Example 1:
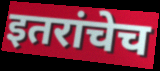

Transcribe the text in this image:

इतरांचेच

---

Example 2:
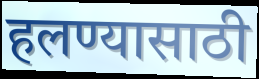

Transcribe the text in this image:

हलण्यासाठी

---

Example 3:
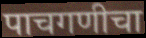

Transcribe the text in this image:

पाचगणीचा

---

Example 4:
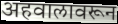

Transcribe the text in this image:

अहवालावरून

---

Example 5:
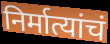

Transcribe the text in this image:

निर्मात्यांचं